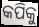
କପିକୁ